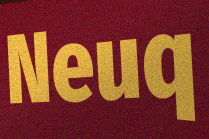
Neuq